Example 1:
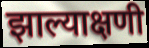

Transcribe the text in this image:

झाल्याक्षणी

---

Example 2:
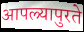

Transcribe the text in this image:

आपल्यापुरते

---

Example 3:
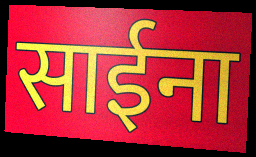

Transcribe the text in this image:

साईना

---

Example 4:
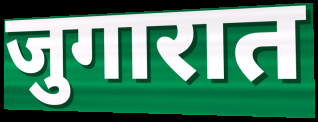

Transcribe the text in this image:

जुगारात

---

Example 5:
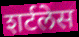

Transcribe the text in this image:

शर्टलेस